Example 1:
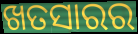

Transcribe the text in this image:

ଖତସାରର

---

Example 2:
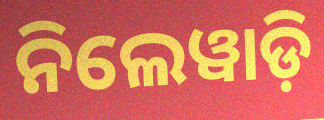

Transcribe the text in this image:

ନିଲେୱାଡ଼ି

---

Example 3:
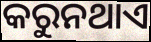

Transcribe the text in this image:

କରୁନଥାଏ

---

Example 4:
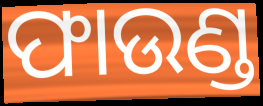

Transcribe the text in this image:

ଫାଉଣ୍ଡ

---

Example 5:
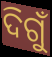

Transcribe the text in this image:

ଦିଗୁଁ